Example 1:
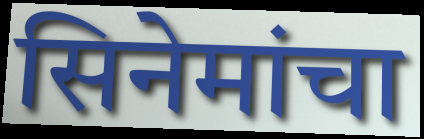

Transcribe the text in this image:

सिनेमांचा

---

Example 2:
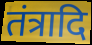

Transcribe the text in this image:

तंत्रादि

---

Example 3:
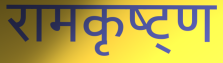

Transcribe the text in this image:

रामकृष्ट्ण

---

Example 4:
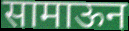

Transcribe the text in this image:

सामाऊन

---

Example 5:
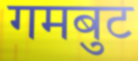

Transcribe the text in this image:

गमबुट